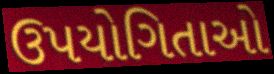
ઉપયોગિતાઓ